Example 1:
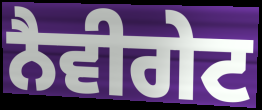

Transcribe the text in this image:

ਨੈਵੀਗੇਟ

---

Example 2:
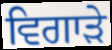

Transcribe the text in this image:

ਵਿਗਾੜੇ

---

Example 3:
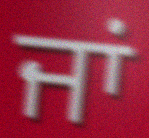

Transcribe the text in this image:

ਜਾਂ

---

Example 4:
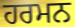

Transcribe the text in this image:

ਹਰਮਨ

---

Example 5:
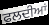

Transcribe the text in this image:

ਫਲਦੀਆਂ